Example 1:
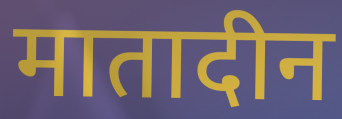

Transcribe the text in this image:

मातादीन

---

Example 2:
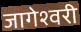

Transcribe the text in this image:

जागेश्वरी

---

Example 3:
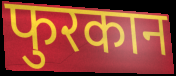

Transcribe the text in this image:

फुरकान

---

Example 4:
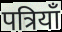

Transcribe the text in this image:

पत्रियाँ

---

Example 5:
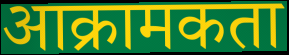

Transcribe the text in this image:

आक्रामकता